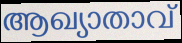
ആഖ്യാതാവ്